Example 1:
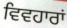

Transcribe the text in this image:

ਵਿਵਹਾਰਾਂ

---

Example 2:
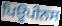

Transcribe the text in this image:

ਪਿਊਪੀਨਸ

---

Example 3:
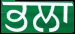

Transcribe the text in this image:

ਭਲਾ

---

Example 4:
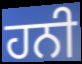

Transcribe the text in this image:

ਹਨੀ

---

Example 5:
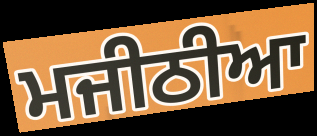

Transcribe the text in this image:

ਮਜੀਠੀਆ